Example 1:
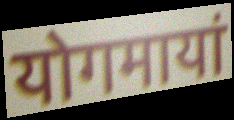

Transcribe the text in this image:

योगमायां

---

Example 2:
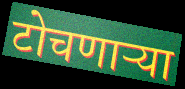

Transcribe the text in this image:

टोचणाऱ्या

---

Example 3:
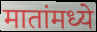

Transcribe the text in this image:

मातांमध्ये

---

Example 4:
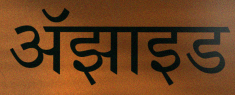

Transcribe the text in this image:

ॲझाइड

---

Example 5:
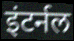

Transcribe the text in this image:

इंटर्नल